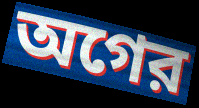
অগের